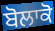
ਬੋਲਾਕੋ